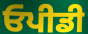
ਓਪੀਡੀ